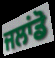
ਜਲਾਂਡੋ